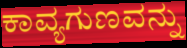
ಕಾವ್ಯಗುಣವನ್ನು